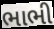
ભાભી